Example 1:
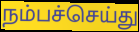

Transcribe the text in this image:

நம்பச்செய்து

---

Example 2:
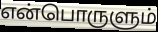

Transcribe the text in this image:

என்பொருளும்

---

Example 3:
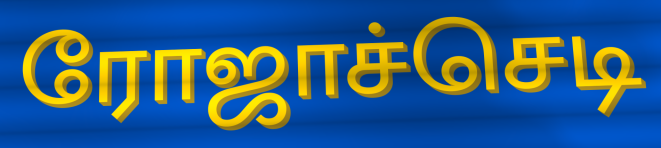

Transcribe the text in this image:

ரோஜாச்செடி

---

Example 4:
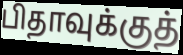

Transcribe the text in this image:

பிதாவுக்குத்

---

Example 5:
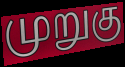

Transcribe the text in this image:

முறுகு